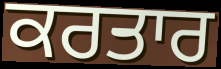
ਕਰਤਾਰ